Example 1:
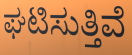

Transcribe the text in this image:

ಘಟಿಸುತ್ತಿವೆ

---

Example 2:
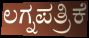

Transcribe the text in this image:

ಲಗ್ನಪತ್ರಿಕೆ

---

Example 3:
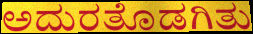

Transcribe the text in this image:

ಅದುರತೊಡಗಿತು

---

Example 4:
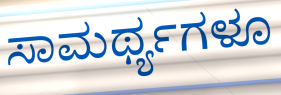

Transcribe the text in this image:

ಸಾಮರ್ಥ್ಯಗಳೂ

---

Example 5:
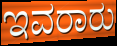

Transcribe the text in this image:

ಇವರಾರು